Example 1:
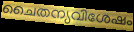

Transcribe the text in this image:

ചൈതന്യവിശേഷം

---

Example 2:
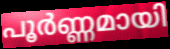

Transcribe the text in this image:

പൂർണ്ണമായി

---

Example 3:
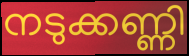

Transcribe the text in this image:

നടുക്കണ്ണി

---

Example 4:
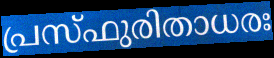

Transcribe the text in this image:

പ്രസ്ഫുരിതാധരഃ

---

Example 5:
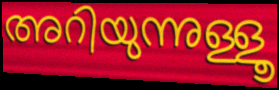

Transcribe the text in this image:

അറിയുന്നുള്ളൂ